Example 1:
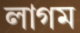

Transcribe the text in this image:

লাগম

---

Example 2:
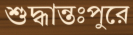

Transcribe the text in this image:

শুদ্ধান্তঃপুরে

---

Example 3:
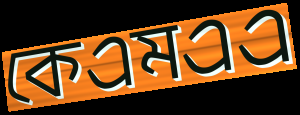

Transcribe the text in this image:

কেএমএএ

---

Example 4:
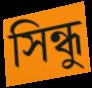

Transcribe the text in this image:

সিন্ধু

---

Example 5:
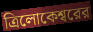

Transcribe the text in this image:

ত্রিলোকেশ্বরের